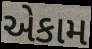
એકામ